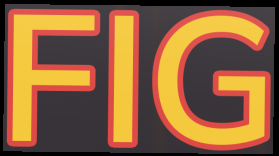
FIG